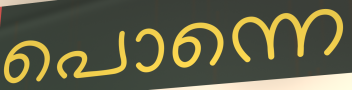
പൊന്നെ